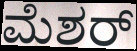
ಮೆಶರ್